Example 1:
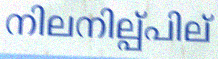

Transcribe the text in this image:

നിലനില്പ്പില്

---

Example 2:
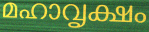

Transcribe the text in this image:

മഹാവൃക്ഷം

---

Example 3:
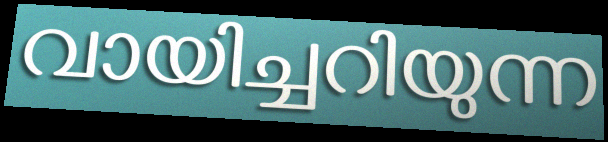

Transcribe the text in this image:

വായിച്ചറിയുന്ന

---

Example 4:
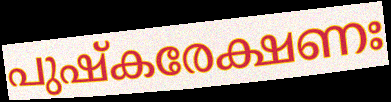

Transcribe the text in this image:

പുഷ്കരേക്ഷണഃ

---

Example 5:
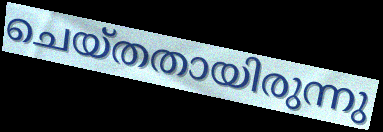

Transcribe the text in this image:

ചെയ്തതായിരുന്നു